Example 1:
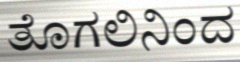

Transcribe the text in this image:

ತೊಗಲಿನಿಂದ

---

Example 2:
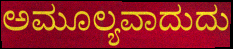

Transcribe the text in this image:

ಅಮೂಲ್ಯವಾದುದು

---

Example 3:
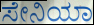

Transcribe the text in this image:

ಸೇನಿಯಾ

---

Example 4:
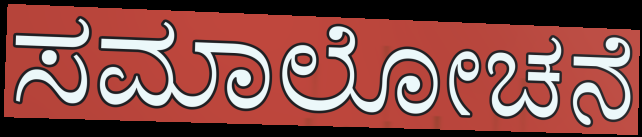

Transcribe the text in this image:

ಸಮಾಲೋಚನೆ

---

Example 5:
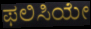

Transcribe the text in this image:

ಫಲಿಸಿಯೇ